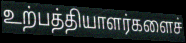
உற்பத்தியாளர்களைச்